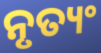
ନୃତ୍ୟଂ